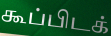
கூப்பிடக்